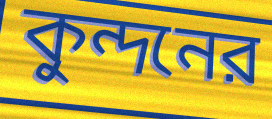
কুন্দনের